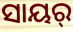
ସାୟର୍